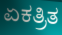
ಏಕತ್ರಿತ